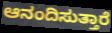
ಆನಂದಿಸುತ್ತಾರೆ